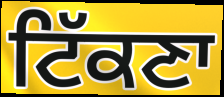
ਟਿੱਕਣਾ